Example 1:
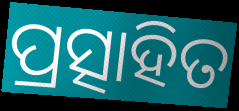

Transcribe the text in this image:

ପ୍ରତ୍ସାହିତ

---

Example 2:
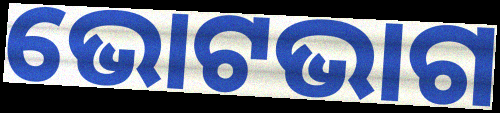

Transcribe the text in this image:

ଭୋଟଭାଗ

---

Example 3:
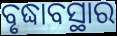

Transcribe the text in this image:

ବୃଦ୍ଧାବସ୍ଥାର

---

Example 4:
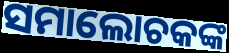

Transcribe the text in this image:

ସମାଲୋଚକଙ୍କ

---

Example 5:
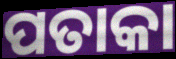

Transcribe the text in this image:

ପତାକା